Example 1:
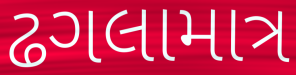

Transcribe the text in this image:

ઢગલામાત્ર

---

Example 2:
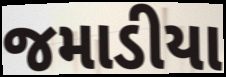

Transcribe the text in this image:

જમાડીયા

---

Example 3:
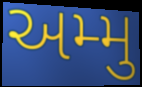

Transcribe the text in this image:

અમ્મુ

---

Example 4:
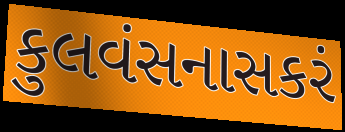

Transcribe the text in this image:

કુલવંસનાસકરં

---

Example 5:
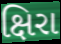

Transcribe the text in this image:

ક્ષિરા